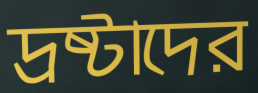
দ্রষ্টাদের